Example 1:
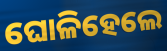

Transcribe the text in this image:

ଘୋଳିହେଲେ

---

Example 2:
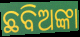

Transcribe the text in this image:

ଛବିଅଙ୍କା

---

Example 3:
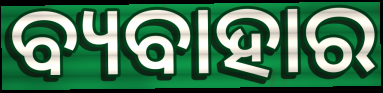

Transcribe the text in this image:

ବ୍ୟବାହାର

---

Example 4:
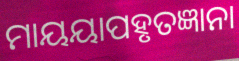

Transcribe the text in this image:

ମାୟୟାପହୃତଜ୍ଞାନା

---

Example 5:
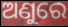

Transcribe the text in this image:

ଅଣୁରେ